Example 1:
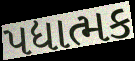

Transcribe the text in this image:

પદ્યાત્મક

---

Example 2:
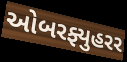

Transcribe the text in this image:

ઓબરફ્યુહરર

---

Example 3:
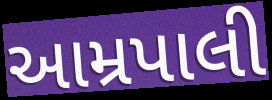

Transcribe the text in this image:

આમ્રપાલી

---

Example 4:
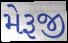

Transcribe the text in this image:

મેરૂજી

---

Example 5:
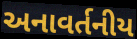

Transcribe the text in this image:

અનાવર્તનીય